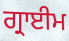
ਗ੍ਰਾਈਮ